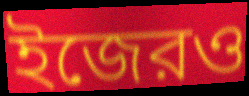
ইজেরও